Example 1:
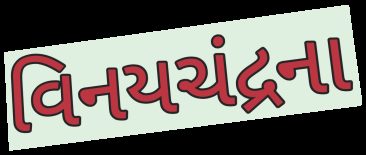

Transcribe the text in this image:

વિનયચંદ્રના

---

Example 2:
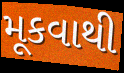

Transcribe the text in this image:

મૂકવાથી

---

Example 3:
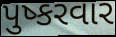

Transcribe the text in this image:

પુષ્કરવાર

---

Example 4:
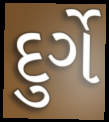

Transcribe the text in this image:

દુર્ગે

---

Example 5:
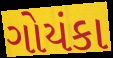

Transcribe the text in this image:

ગોયંકા